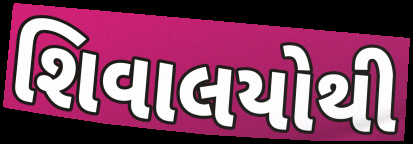
શિવાલયોથી